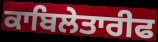
ਕਾਬਿਲੇਤਾਰੀਫ